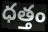
ధత్తం